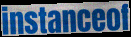
instanceof